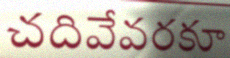
చదివేవరకూ